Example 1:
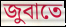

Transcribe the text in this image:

জুবাতে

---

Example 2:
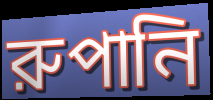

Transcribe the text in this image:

রুপানি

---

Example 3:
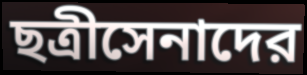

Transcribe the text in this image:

ছত্রীসেনাদের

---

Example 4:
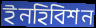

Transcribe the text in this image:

ইনহিবিশন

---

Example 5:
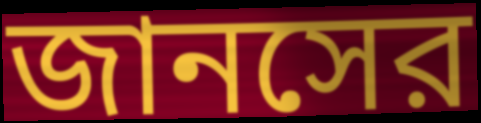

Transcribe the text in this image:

জানসের